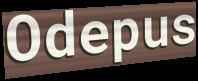
Odepus